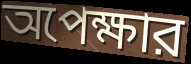
অপেক্ষার